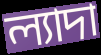
ল্যাদা